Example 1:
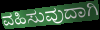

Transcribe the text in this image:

ವಹಿಸುವುದಾಗಿ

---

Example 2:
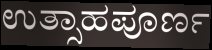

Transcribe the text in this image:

ಉತ್ಸಾಹಪೂರ್ಣ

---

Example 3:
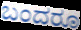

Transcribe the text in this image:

ಬಂದರೂ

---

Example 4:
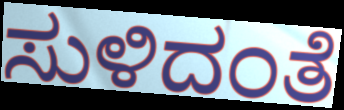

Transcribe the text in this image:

ಸುಳಿದಂತೆ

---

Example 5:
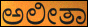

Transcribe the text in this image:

ಅಲೀತಾ